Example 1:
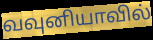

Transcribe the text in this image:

வவுனியாவில்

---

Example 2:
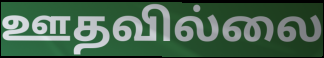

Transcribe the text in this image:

ஊதவில்லை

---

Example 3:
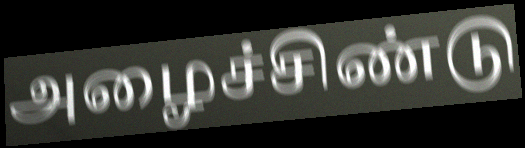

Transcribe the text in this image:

அழைச்சிண்டு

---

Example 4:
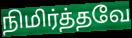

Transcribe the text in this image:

நிமிர்த்தவே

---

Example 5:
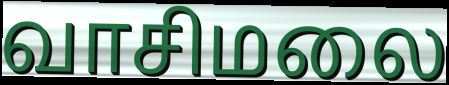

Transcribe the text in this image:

வாசிமலை